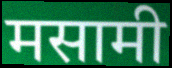
मसामी